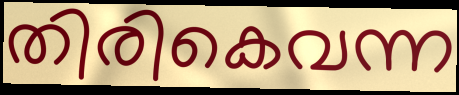
തിരികെവന്ന